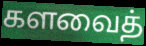
களவைத்